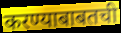
करण्याबाबतची